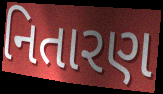
નિતારણ